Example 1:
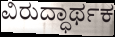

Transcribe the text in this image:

ವಿರುದ್ಧಾರ್ಥಕ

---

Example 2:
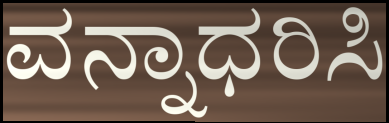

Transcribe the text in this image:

ವನ್ನಾಧರಿಸಿ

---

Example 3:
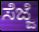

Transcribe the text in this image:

ಸೆಜ್ಜೆ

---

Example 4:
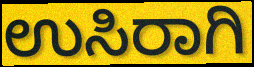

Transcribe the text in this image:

ಉಸಿರಾಗಿ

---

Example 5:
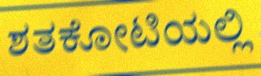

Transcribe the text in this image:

ಶತಕೋಟಿಯಲ್ಲಿ